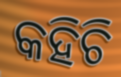
କହିଚି